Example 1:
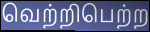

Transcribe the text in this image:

வெற்றிபெற்ற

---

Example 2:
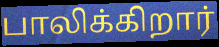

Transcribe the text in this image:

பாலிக்கிறார்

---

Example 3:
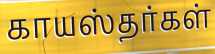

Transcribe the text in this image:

காயஸ்தர்கள்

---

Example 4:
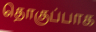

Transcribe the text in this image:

தொகுப்பாக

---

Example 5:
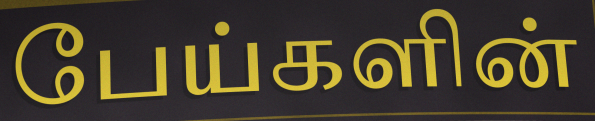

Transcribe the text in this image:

பேய்களின்